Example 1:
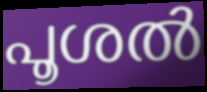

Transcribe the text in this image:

പൂശൽ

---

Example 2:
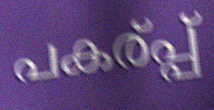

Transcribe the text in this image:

പകര്പ്പ്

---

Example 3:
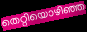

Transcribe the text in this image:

തെറ്റിയൊഴിഞ്ഞ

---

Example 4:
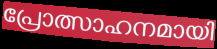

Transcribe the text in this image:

പ്രോത്സാഹനമായി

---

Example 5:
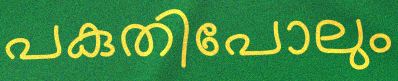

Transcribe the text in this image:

പകുതിപോലും